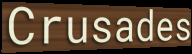
Crusades